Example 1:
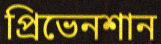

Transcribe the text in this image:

প্রিভেনশান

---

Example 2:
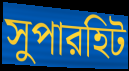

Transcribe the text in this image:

সুপারহিট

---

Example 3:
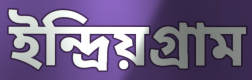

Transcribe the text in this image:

ইন্দ্রিয়গ্রাম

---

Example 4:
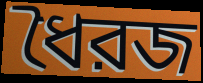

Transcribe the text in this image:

ধৈরজ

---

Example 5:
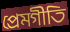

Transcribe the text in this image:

প্রেমগীতি